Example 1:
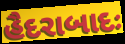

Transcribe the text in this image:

હૈદરાબાદઃ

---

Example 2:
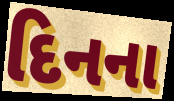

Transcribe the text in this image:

દિનના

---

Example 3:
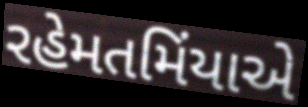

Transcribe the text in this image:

રહેમતમિંયાએ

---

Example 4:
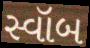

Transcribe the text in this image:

સ્વૉબ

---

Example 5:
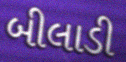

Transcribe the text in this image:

બીલાડી